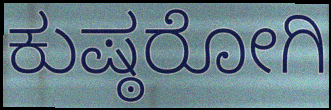
ಕುಷ್ಠರೋಗಿ